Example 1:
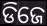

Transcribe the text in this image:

ଡିଜେ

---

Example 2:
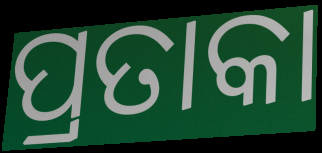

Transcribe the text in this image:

ପ୍ରତାକା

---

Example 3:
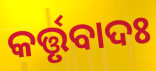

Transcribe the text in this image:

କର୍ତ୍ତୃବାଦଃ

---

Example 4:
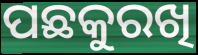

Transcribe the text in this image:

ପଛକୁରଖି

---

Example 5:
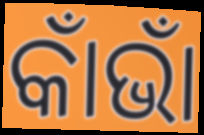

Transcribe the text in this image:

କାଁଭାଁ